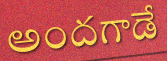
అందగాడే